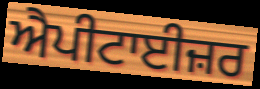
ਐਪੀਟਾਈਜ਼ਰ